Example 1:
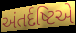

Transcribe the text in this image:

અંતર્દષ્ટિએ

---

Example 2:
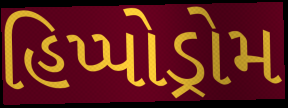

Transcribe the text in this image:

હિપ્પોડ્રોમ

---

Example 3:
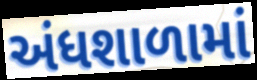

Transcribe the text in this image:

અંધશાળામાં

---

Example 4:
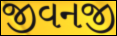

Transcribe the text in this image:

જીવનજી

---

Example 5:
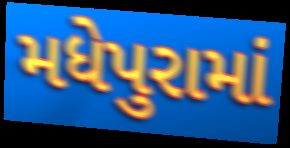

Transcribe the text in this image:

મધેપુરામાં